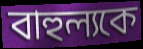
বাহুল্যকে